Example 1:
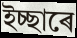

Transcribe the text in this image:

ইচ্ছাৰে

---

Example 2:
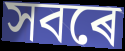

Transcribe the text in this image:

সবৰে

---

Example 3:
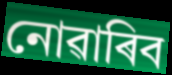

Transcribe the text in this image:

নোৱাৰিব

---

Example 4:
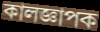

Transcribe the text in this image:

কালজ্ঞাপক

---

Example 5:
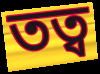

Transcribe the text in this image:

তত্ব